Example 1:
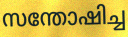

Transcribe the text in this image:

സന്തോഷിച്ച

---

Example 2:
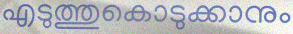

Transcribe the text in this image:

എടുത്തുകൊടുക്കാനും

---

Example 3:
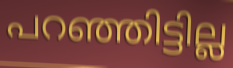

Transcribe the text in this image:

പറഞ്ഞിട്ടില്ല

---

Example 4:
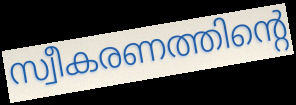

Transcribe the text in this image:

സ്വീകരണത്തിന്റെ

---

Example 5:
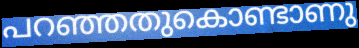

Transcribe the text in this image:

പറഞ്ഞതുകൊണ്ടാണു